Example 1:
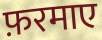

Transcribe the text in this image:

फ़रमाए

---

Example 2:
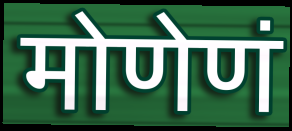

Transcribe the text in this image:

मोणेणं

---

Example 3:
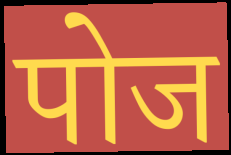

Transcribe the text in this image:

पोज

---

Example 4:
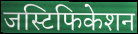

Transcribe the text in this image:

जस्टिफिकेशन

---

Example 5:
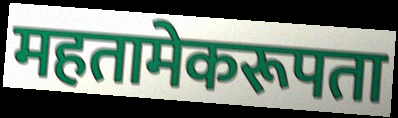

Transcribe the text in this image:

महतामेकरूपता